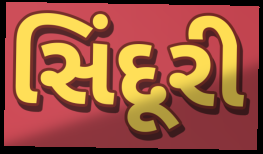
સિંદૂરી